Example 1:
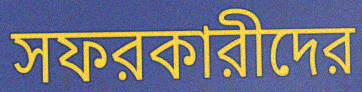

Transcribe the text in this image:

সফরকারীদের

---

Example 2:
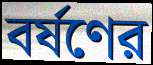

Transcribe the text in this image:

বর্ষণের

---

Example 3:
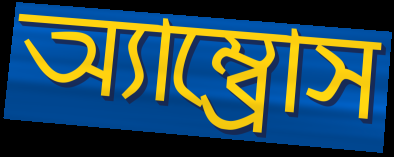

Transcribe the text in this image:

অ্যাম্ব্রোস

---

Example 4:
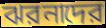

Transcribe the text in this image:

ঝরনাদের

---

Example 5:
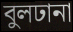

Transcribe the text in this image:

বুলঢানা